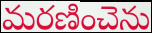
మరణించెను